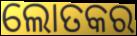
ଲୋତକର